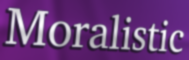
Moralistic